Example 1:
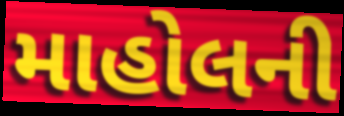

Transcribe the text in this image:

માહોલની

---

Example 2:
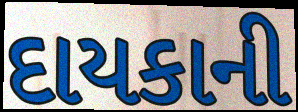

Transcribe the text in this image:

દાયકાની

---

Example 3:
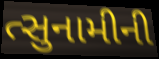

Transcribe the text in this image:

ત્સુનામીની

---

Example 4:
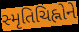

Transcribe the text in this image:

સ્મૃતિચિહ્નોને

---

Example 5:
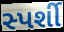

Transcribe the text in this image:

સ્પર્શી